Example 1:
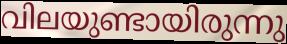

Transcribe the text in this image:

വിലയുണ്ടായിരുന്നു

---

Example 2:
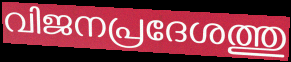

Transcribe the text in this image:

വിജനപ്രദേശത്തു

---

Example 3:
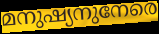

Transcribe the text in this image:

മനുഷ്യനുനേരെ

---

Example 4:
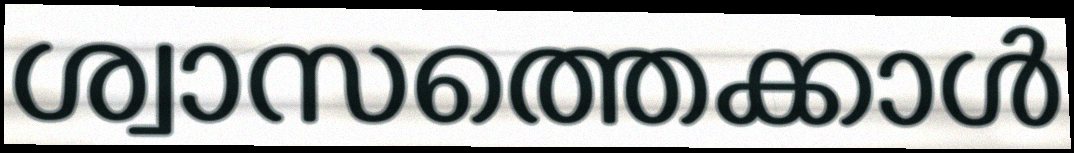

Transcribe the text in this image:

ശ്വാസത്തെക്കാൾ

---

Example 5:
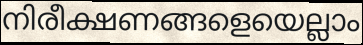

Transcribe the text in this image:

നിരീക്ഷണങ്ങളെയെല്ലാം